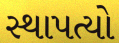
સ્થાપત્યો